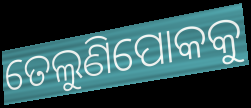
ତେଲୁଣିପୋକକୁ